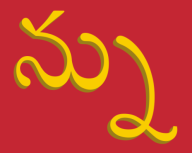
న్ను